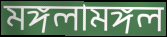
মঙ্গলামঙ্গল